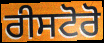
ਰੀਸਟੋਰੋ